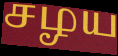
சழய